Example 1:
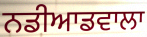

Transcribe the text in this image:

ਨਡੀਆਡਵਾਲਾ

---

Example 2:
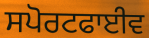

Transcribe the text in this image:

ਸਪੋਰਟਫਾਈਵ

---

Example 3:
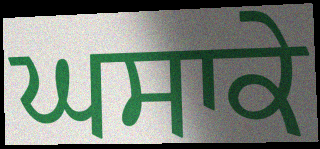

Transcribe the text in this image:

ਘਸਾਕੇ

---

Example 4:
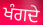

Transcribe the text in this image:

ਖੰਗਦੇ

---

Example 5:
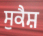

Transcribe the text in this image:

ਸੁਕੈਸ਼